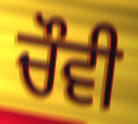
ਚੌਵੀ